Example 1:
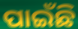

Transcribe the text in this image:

ପାଇଁଛି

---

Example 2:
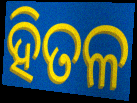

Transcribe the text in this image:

ହିତଳ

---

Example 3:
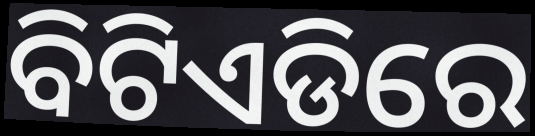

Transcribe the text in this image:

ବିଟିଏଡିରେ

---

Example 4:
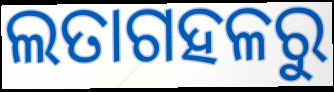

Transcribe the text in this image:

ଲତାଗହଳରୁ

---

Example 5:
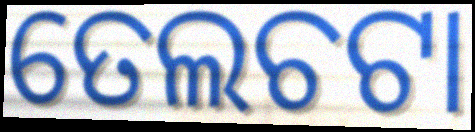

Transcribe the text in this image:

ତେଲଚଟା